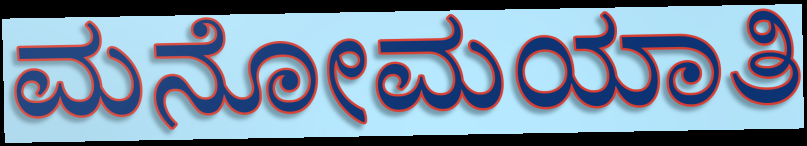
ಮನೋಮಯಾತಿ